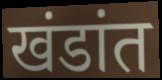
खंडांत